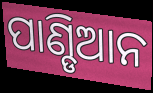
ପାଣ୍ଡିଆନ